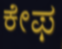
ಕೇಫ